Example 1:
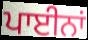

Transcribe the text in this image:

ਪਾਈਨਾਂ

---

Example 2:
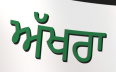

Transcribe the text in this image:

ਅੱਖਰਾ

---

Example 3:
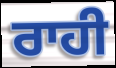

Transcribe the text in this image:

ਰਾਹੀ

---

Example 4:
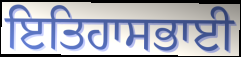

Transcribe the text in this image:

ਇਤਿਹਾਸਭਾਈ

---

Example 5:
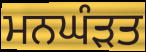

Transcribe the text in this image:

ਮਨਘੰੜਤ